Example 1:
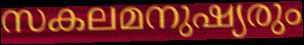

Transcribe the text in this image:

സകലമനുഷ്യരും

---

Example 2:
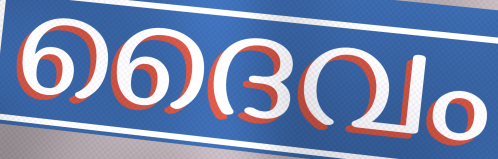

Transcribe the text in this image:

ദൈവം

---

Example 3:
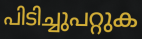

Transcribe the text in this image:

പിടിച്ചുപറ്റുക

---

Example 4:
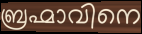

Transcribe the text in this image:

ബ്രഹ്മാവിനെ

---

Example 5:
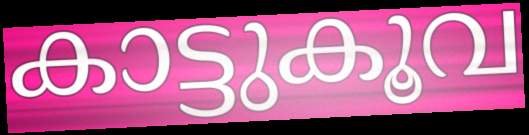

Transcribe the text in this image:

കാട്ടുകൂവ